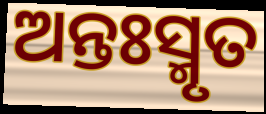
ଅନ୍ତଃସ୍ମୃତ